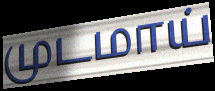
முடமாய்